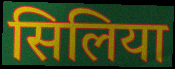
सिलिया